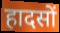
हादसों